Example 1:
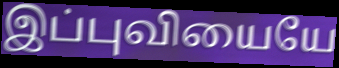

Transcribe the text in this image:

இப்புவியையே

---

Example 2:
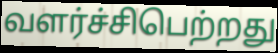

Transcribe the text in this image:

வளர்ச்சிபெற்றது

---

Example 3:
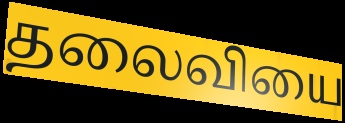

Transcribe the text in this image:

தலைவியை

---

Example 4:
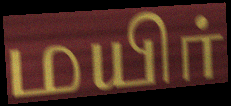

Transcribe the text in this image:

மயிர்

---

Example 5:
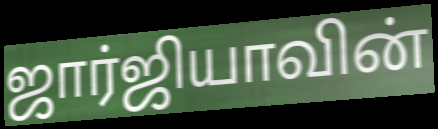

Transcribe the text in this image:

ஜார்ஜியாவின்